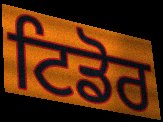
ਟਿਡੋਰ